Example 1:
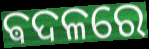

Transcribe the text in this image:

ଵଦଳରେ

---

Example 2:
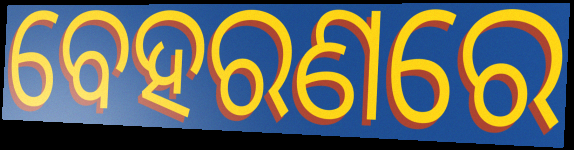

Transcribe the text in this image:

ବେହରଣରେ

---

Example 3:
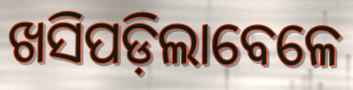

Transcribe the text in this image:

ଖସିପଡ଼ିଲାବେଳେ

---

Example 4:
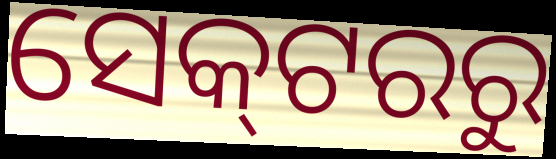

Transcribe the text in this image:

ସେକ୍‌ଟରରୁ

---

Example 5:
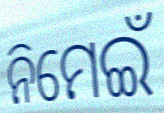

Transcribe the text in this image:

ନିମେଇଁ